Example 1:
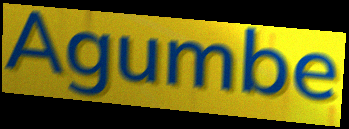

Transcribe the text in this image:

Agumbe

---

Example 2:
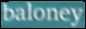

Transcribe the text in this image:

baloney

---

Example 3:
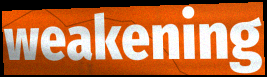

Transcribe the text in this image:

weakening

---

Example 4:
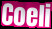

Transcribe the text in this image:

Coeli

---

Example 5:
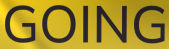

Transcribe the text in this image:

GOING